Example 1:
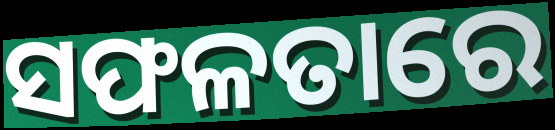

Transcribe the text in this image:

ସଫଳତାରେ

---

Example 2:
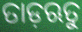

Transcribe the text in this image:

ତାଡ଼ଋତୁ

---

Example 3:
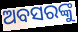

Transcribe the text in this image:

ଅବସରଙ୍କୁ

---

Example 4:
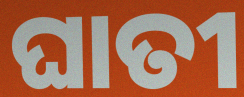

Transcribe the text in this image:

ଘାତୀ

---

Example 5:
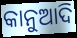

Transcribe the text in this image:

କାନୁଆଦି